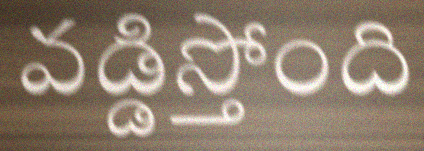
వడ్డిస్తోంది